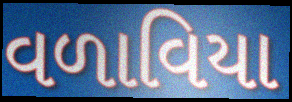
વળાવિયા